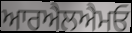
ਆਰਐਲਐਮਓ